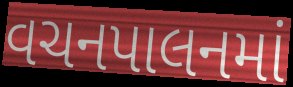
વચનપાલનમાં